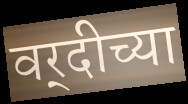
वर्दीच्या